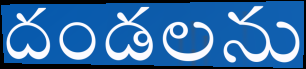
దండలను